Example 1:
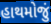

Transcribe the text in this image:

હાથમોજું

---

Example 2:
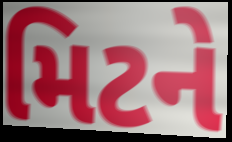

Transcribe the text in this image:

મિટને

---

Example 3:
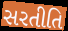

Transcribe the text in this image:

સરતીતિ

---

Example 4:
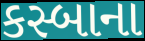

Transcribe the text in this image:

કસ્બાના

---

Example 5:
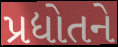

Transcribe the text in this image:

પ્રદ્યોતને